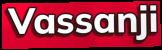
Vassanji